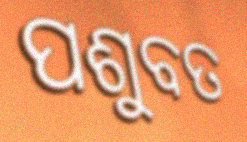
ପଶୁବତ